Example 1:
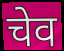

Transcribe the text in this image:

चेव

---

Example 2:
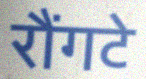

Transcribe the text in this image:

रौंगटे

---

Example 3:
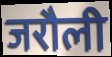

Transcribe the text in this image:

जरौली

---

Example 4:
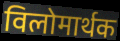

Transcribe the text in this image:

विलोमार्थक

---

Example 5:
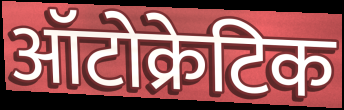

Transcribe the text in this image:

ऑटोक्रेटिक